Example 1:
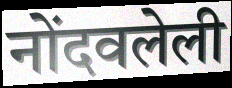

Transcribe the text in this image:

नोंदवलेली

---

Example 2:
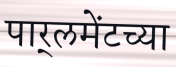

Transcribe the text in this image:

पार्लमेंटच्या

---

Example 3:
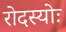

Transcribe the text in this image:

रोदस्योः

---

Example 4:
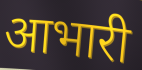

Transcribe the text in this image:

आभारी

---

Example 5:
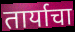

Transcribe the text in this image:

तार्याचा